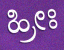
ಹ್ರೀಃ